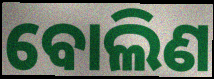
ବୋଲିଣ